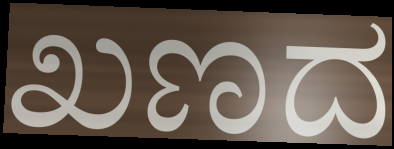
ಖಣದ